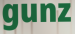
gunz